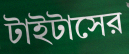
টাইটাসের